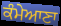
ਕੰਮੇਆਣਾ